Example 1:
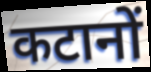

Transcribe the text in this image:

कटानों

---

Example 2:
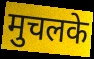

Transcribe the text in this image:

मुचलके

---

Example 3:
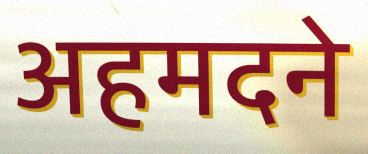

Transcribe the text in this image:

अहमदने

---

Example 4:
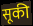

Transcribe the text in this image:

सूकी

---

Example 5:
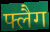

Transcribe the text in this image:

फ्लैग